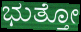
ಭುತ್ತೋ